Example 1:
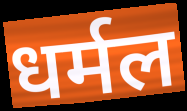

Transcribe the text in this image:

धर्मल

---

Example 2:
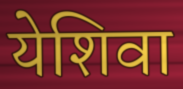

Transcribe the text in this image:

येशिवा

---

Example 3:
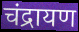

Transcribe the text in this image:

चंद्रायण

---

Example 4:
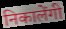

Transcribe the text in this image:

निकालेंगी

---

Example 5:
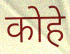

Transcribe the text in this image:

कोहे